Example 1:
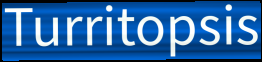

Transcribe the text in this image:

Turritopsis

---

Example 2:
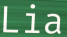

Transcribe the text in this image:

Lia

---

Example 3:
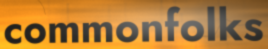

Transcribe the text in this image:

commonfolks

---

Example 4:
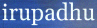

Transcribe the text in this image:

irupadhu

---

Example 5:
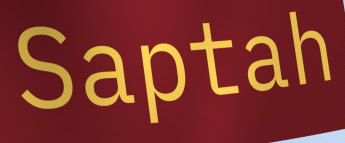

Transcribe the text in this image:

Saptah